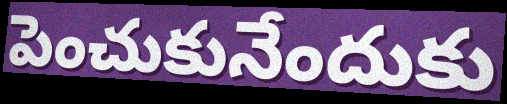
పెంచుకునేందుకు